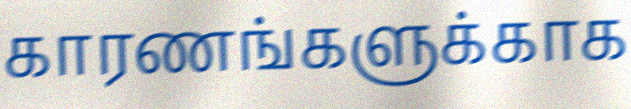
காரணங்களுக்காக